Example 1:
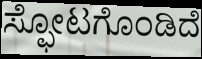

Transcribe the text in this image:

ಸ್ಫೋಟಗೊಂಡಿದೆ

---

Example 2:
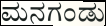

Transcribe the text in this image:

ಮನಗಂಡು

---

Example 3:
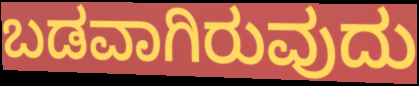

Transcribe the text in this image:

ಬಡವಾಗಿರುವುದು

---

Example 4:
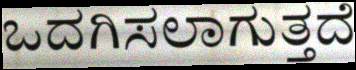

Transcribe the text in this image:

ಒದಗಿಸಲಾಗುತ್ತದೆ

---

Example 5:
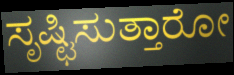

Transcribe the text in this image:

ಸೃಷ್ಟಿಸುತ್ತಾರೋ